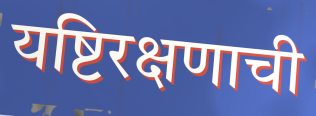
यष्टिरक्षणाची